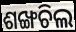
ଶଙ୍ଖଚିଲ